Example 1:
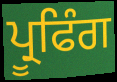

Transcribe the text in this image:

ਪ੍ਰੂਫਿੰਗ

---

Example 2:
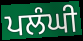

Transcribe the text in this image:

ਪਲੰਘੀ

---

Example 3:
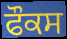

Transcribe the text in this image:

ਫੌਕਸ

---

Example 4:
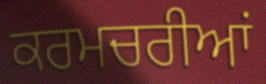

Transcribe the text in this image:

ਕਰਮਚਰੀਆਂ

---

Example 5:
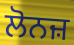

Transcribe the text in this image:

ਲੋਨਜ਼